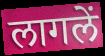
लागलें